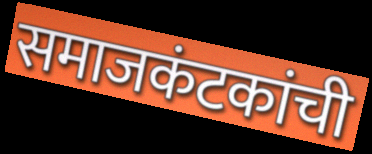
समाजकंटकांची